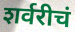
शर्वरीचं